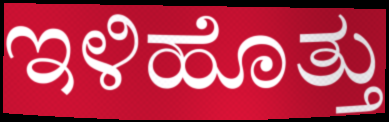
ಇಳಿಹೊತ್ತು